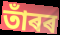
তাঁৰৰ